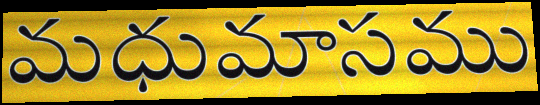
మధుమాసము